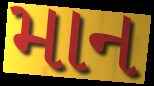
માન